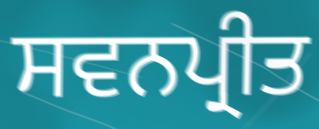
ਸਵਨਪ੍ਰੀਤ